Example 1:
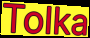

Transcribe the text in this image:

Tolka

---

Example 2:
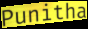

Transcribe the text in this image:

Punitha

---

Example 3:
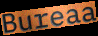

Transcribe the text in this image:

Bureaa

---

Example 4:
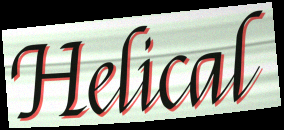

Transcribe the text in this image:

Helical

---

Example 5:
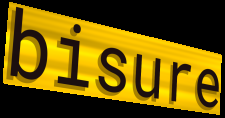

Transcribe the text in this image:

bisure